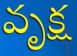
వృక్ష